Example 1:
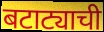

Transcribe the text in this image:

बटाट्याची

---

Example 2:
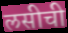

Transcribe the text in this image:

लसीची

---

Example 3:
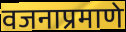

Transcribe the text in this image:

वजनाप्रमाणे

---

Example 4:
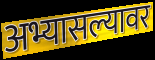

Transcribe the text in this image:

अभ्यासल्यावर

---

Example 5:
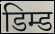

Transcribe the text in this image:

डिम्ड